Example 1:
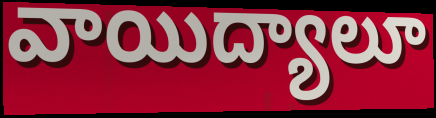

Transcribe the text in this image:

వాయిద్యాలూ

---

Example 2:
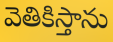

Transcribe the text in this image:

వెతికిస్తాను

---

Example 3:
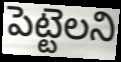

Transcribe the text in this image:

పెట్టెలని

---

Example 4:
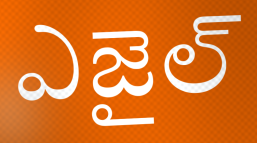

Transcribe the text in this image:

ఎజైల్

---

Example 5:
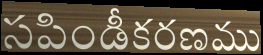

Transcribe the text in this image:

సపిండీకరణము